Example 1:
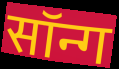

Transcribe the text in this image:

सॉन्ग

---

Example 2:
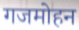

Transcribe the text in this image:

गजमोहन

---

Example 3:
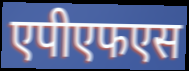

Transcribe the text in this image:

एपीएफएस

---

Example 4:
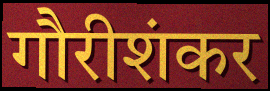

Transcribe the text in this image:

गौरीशंकर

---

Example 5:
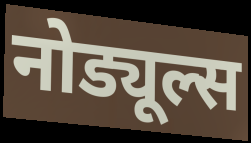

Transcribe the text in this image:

नोड्यूल्स